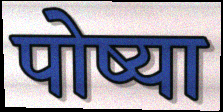
पोष्या